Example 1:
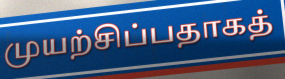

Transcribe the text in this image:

முயற்சிப்பதாகத்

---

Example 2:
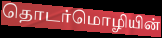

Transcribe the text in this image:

தொடர்மொழியின்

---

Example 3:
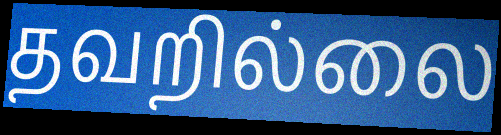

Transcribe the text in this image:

தவறில்லை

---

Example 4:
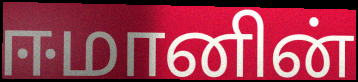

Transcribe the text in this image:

ஈமானின்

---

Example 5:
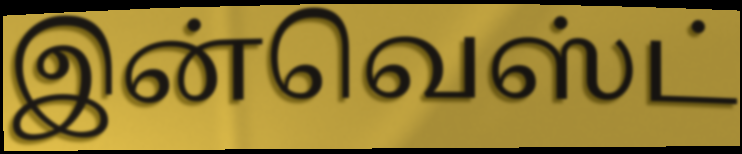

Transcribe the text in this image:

இன்வெஸ்ட்